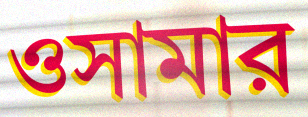
ওসামার